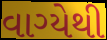
વાગ્યેથી